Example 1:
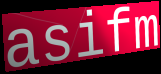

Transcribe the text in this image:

asifm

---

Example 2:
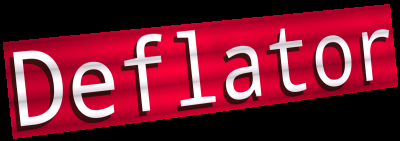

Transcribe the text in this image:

Deflator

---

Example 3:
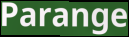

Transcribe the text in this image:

Parange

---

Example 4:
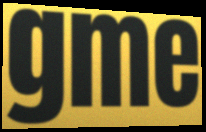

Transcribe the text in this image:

gme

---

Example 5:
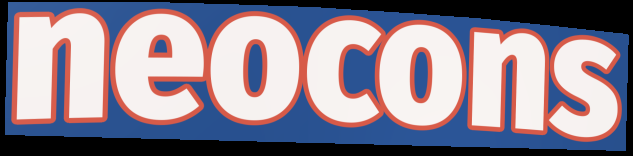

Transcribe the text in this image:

neocons